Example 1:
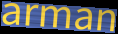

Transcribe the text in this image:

arman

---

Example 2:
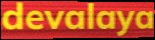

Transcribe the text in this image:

devalaya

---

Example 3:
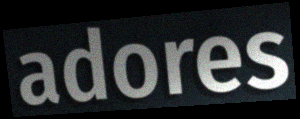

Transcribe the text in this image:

adores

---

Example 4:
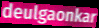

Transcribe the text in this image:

deulgaonkar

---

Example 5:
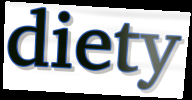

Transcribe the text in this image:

diety